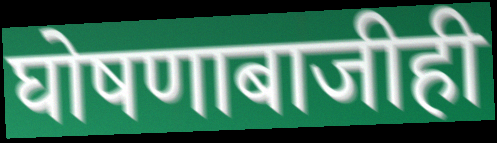
घोषणाबाजीही